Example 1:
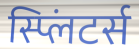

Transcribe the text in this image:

स्प्लिंटर्स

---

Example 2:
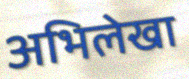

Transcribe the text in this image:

अभिलेखा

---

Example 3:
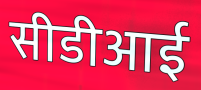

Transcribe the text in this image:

सीडीआई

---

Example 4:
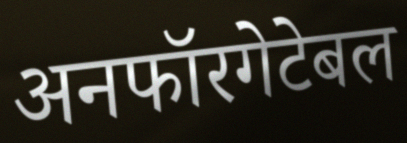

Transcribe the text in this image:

अनफॉरगेटेबल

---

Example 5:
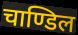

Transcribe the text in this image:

चाण्डिल